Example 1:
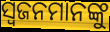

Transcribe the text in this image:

ସ୍ବଜନମାନଙ୍କୁ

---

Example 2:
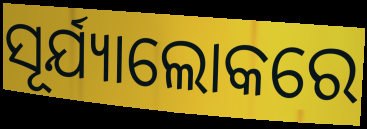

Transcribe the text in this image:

ସୂର୍ଯ୍ୟାଲୋକରେ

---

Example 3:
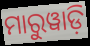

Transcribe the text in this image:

ମାରୁୱାଡ଼ି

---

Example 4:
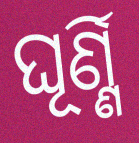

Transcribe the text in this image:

ଘୂର୍ଣ୍ଣି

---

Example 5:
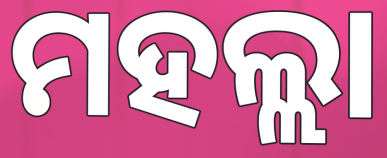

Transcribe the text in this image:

ମହଲ୍ଲା